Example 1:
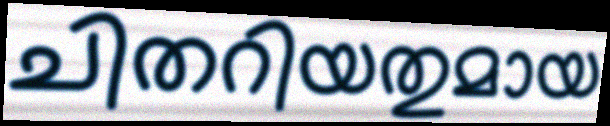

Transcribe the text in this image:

ചിതറിയതുമായ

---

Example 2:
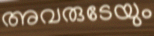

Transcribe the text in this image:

അവരുടേയും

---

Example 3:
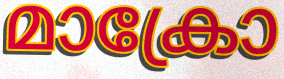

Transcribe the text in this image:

മാക്രോ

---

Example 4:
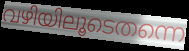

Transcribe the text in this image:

വഴിയിലൂടെതന്നെ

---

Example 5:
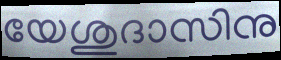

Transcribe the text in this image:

യേശുദാസിനു